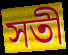
সতী